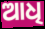
ଆଧି